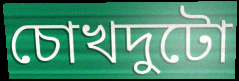
চোখদুটো